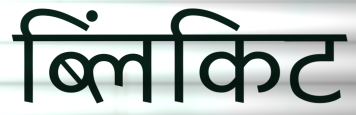
ब्लिंकिट